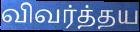
விவர்த்தய